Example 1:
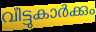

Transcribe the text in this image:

വീട്ടുകാർക്കും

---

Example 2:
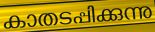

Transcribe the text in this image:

കാതടപ്പിക്കുന്നു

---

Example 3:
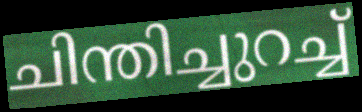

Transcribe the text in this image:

ചിന്തിച്ചുറച്ച്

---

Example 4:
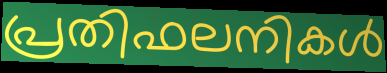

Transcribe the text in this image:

പ്രതിഫലനികൾ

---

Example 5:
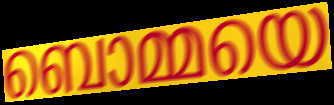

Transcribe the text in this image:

ബൊമ്മയെ